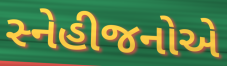
સ્નેહીજનોએ